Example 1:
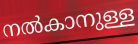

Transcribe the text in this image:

നൽകാനുള്ള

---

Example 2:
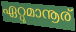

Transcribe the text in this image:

ഏറ്റുമാനൂര്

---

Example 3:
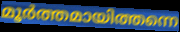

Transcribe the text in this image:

മൂർത്തമായിത്തന്നെ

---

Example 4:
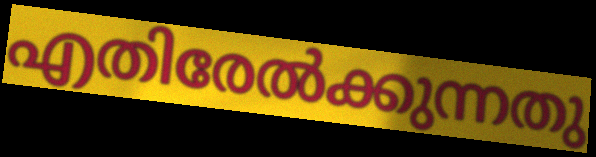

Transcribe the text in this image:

എതിരേൽക്കുന്നതു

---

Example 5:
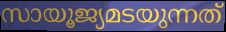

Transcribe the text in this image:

സായൂജ്യമടയുന്നത്